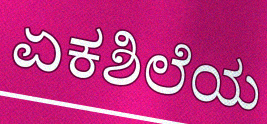
ಏಕಶಿಲೆಯ